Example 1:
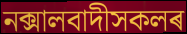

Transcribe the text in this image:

নক্সালবাদীসকলৰ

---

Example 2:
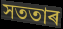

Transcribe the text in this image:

সততাৰ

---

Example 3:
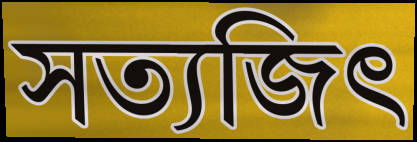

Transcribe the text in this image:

সত্যজিৎ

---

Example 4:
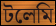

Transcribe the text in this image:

টলেমি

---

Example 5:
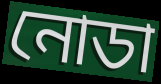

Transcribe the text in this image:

নোডা